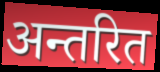
अन्तरित